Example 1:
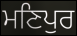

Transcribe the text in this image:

ਮਣਿਪੁਰ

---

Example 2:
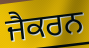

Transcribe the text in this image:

ਜੈਕਰਨ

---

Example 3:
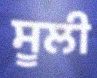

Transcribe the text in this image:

ਸੂਲੀ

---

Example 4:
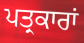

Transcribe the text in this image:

ਪਤ੍ਰਕਾਰਾਂ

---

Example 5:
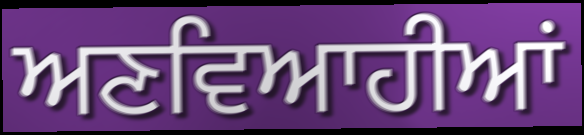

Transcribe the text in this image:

ਅਣਵਿਆਹੀਆਂ